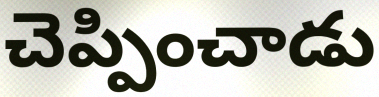
చెప్పించాడు